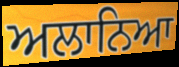
ਅਲਾਨਿਆ